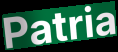
Patria